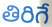
తిరిగే